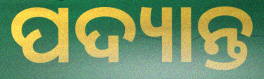
ପଦ୍ୟାନ୍ତ